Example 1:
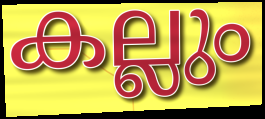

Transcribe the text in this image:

കല്ലും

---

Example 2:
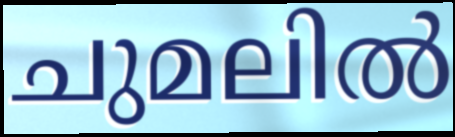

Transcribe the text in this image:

ചുമലിൽ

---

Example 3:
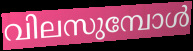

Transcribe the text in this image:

വിലസുമ്പോൾ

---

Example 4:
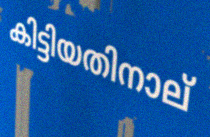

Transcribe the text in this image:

കിട്ടിയതിനാല്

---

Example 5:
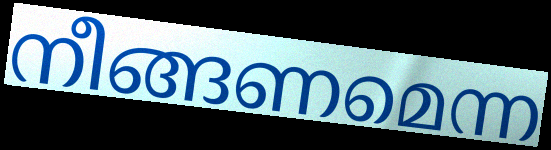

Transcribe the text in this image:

നീങ്ങണമെന്ന